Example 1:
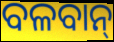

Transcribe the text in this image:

ବଳବାନ୍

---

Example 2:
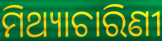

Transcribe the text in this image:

ମିଥ୍ୟାଚାରିଣୀ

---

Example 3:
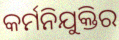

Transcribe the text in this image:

କର୍ମନିଯୁକ୍ତିର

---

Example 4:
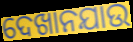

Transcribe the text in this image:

ଦେଖାନଯାଉ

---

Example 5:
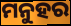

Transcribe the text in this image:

ମନୁହର